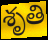
శృతి